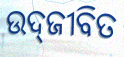
ଉଦ୍‌ଜୀବିତ